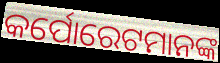
କର୍ପୋରେଟମାନଙ୍କ